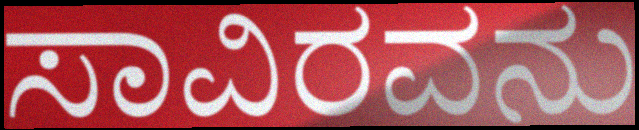
ಸಾವಿರವನು